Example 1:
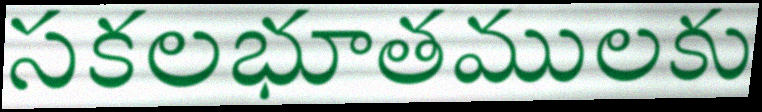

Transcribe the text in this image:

సకలభూతములకు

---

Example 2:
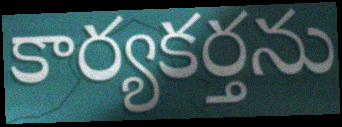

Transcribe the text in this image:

కార్యకర్తను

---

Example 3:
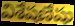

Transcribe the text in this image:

విశేషణేషు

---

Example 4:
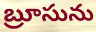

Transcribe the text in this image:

బ్రూసును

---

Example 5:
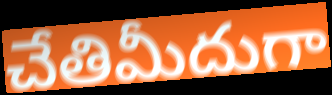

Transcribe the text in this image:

చేతిమీదుగా